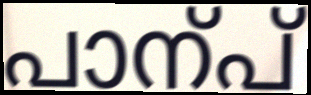
പാന്പ്